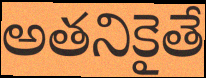
అతనికైతే